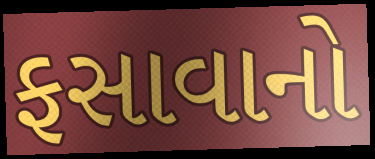
ફસાવાનો